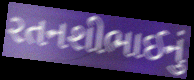
રતનશીભાઈનું